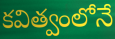
కవిత్వంలోనే